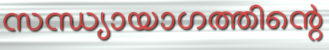
സന്ധ്യായാഗത്തിന്റെ